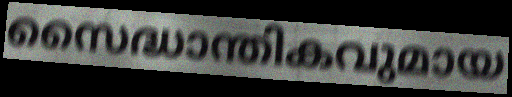
സൈദ്ധാന്തികവുമായ